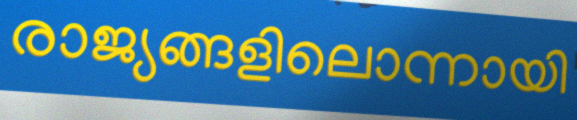
രാജ്യങ്ങളിലൊന്നായി